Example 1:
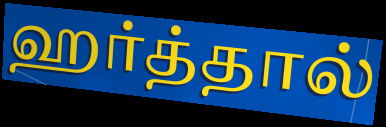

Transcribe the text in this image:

ஹர்த்தால்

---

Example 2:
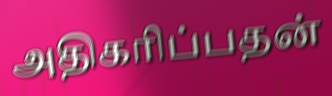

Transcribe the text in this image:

அதிகரிப்பதன்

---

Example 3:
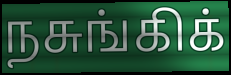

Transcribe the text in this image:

நசுங்கிக்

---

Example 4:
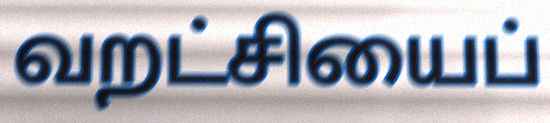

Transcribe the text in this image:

வறட்சியைப்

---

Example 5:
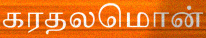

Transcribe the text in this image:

கரதலமொன்